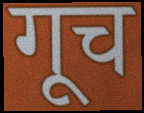
गूच